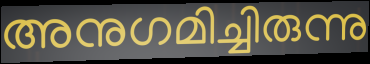
അനുഗമിച്ചിരുന്നു